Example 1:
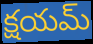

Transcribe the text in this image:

క్షయమ్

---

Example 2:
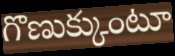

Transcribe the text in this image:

గొణుక్కుంటూ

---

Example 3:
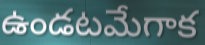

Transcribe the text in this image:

ఉండటమేగాక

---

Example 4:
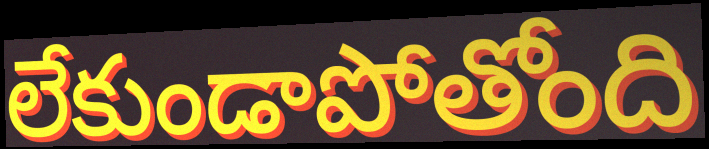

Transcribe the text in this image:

లేకుండాపోతోంది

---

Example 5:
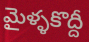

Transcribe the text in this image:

మైళ్ళకొద్దీ